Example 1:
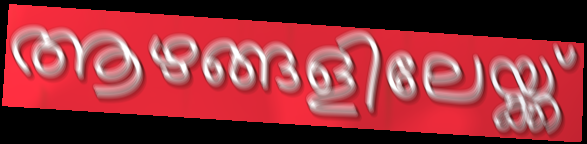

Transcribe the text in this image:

ആഴങ്ങളിലേയ്ക്ക്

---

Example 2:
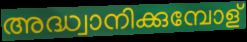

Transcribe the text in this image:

അദ്ധ്വാനിക്കുമ്പോള്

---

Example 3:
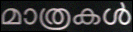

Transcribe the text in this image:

മാത്രകൾ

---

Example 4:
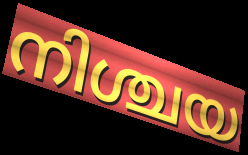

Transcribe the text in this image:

നിശ്ചയ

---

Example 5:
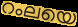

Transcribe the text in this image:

റംലയെ